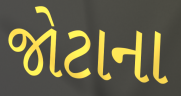
જોટાના